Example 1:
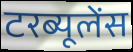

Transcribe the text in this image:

टरब्यूलेंस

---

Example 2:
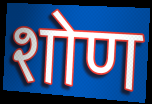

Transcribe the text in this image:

शोण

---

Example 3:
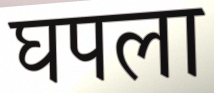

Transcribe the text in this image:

घपला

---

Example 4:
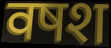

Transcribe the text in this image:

वषश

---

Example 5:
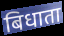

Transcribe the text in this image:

बिधाता